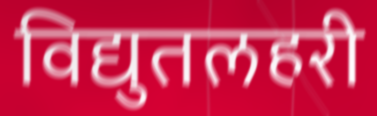
विद्युतलहरी